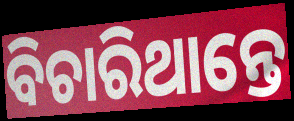
ବିଚାରିଥାନ୍ତେ